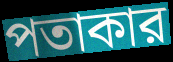
পতাকার